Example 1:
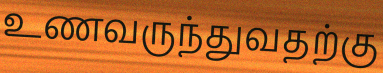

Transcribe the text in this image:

உணவருந்துவதற்கு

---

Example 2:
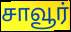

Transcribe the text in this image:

சாவூர்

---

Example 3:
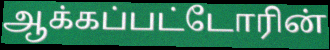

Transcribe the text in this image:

ஆக்கப்பட்டோரின்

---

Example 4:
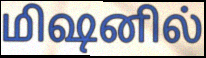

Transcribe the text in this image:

மிஷனில்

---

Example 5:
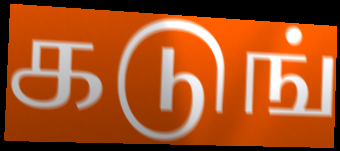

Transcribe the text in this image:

கடுங்